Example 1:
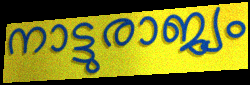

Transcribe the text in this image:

നാട്ടുരാജ്യം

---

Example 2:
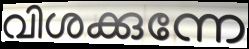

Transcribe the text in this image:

വിശക്കുന്നേ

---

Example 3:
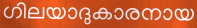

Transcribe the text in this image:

ഗിലയാദുകാരനായ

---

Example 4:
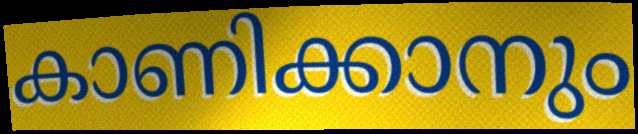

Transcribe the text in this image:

കാണിക്കാനും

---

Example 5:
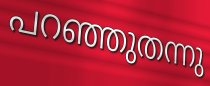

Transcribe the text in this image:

പറഞ്ഞുതന്നു